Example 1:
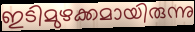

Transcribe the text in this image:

ഇടിമുഴക്കമായിരുന്നു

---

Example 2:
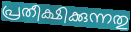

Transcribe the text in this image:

പ്രതീക്ഷിക്കുന്നതു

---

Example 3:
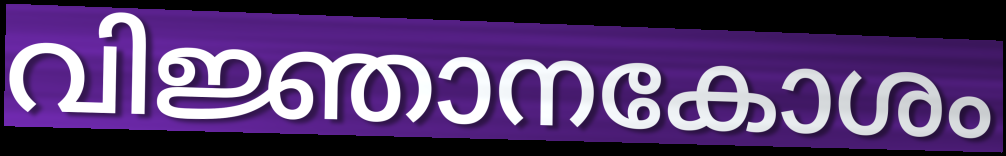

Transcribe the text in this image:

വിജ്ഞാനകോശം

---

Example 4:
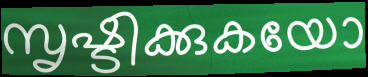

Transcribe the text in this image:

സൃഷ്ടിക്കുകയോ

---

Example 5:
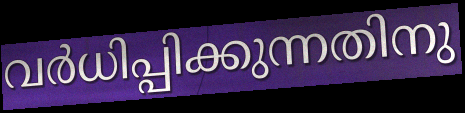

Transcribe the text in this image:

വർധിപ്പിക്കുന്നതിനു